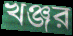
খঞ্জর